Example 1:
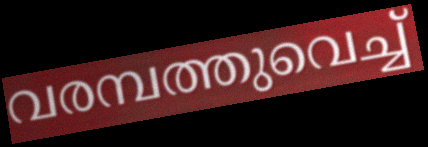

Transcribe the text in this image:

വരമ്പത്തുവെച്ച്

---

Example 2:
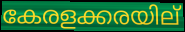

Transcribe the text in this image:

കേരളക്കരയില്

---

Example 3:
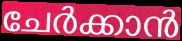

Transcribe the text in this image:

ചേർക്കാൻ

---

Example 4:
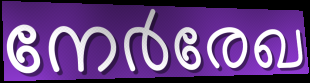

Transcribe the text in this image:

നേർരേഖ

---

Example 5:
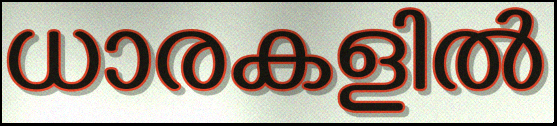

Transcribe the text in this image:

ധാരകളിൽ